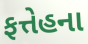
ફત્તેહના